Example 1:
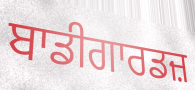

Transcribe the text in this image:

ਬਾਡੀਗਾਰਡਜ਼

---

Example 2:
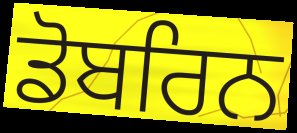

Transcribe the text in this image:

ਡੋਬਰਿਨ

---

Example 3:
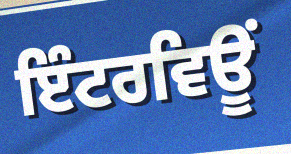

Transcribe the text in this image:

ਇੰਟਰਵਿਊਂ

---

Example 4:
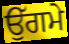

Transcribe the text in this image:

ਉੱਗਮੇ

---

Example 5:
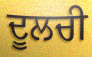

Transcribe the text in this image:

ਦੂਲਚੀ